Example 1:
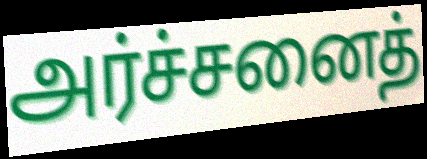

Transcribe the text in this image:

அர்ச்சனைத்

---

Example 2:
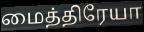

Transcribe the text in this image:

மைத்திரேயா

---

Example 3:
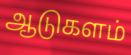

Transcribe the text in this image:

ஆடுகளம்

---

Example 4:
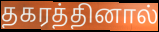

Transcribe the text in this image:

தகரத்தினால்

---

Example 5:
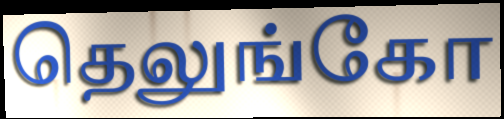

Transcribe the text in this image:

தெலுங்கோ